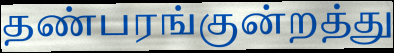
தண்பரங்குன்றத்து